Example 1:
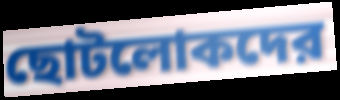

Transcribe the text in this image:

ছোটলোকদের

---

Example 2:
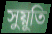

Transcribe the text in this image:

সুয়ূতি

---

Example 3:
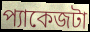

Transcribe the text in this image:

প্যাকেজটা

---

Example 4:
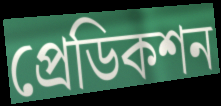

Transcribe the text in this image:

প্রেডিকশন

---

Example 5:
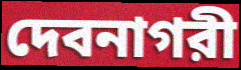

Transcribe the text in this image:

দেবনাগরী